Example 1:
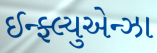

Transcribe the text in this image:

ઈન્ફ્લ્યુએન્ઝા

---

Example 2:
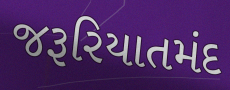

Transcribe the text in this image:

જરૂરિયાતમંદ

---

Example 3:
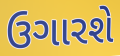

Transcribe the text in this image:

ઉગારશે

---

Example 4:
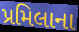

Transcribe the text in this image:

પ્રમિલાના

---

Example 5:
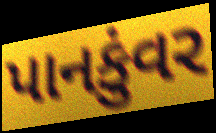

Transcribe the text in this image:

પાનકુંવર